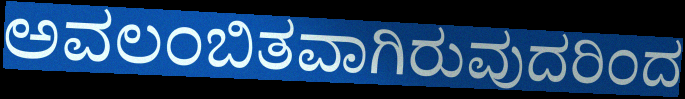
ಅವಲಂಬಿತವಾಗಿರುವುದರಿಂದ